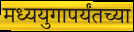
मध्ययुगापर्यंतच्या